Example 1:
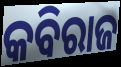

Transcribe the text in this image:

କବିରାଜ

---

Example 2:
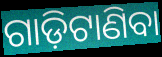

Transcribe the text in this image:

ଗାଡ଼ିଟାଣିବା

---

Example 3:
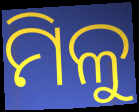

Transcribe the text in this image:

ମିଳୁ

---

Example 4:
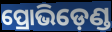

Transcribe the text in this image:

ପ୍ରୋଭିଡ଼େଣ୍ଡ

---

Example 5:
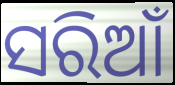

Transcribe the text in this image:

ସରିଆଁ